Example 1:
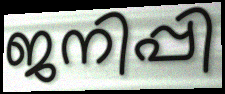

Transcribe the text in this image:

ജനിപ്പി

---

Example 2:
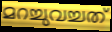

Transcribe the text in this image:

മറച്ചുവച്ചത്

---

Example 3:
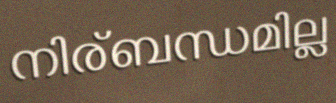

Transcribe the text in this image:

നിര്ബന്ധമില്ല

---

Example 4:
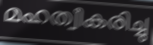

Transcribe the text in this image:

മഹത്വീകരിച്ചു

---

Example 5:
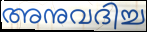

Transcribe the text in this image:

അനുവദിച്ച